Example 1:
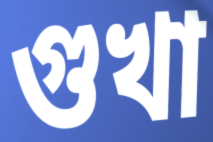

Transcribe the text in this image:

গুখা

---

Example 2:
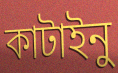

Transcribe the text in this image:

কাটাইনু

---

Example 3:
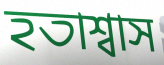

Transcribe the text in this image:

হতাশ্বাস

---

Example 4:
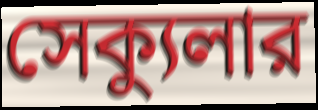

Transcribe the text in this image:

সেক্যুলার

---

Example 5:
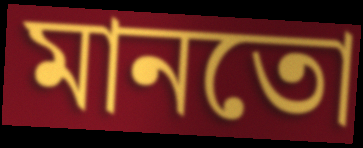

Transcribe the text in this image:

মানতো